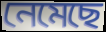
নেমেছে